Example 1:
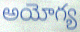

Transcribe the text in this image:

అయోగ్య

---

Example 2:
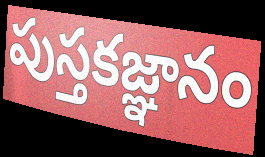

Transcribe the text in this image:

పుస్తకజ్ఞానం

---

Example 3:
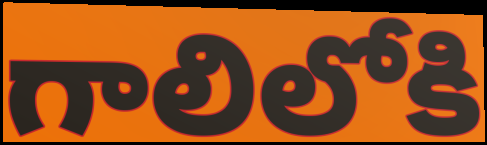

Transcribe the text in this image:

గాలిలోకి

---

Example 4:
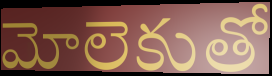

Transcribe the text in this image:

మోలెకుతో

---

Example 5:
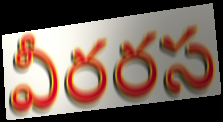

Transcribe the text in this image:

వీరరస